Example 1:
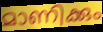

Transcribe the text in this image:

മാണിക്കും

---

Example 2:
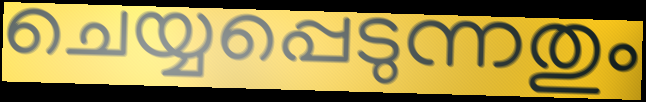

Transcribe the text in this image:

ചെയ്യപ്പെടുന്നതും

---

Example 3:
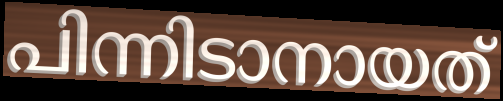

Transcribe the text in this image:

പിന്നിടാനായത്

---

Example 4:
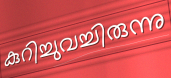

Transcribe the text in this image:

കുറിച്ചുവച്ചിരുന്നു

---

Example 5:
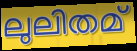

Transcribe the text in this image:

ലുലിതമ്